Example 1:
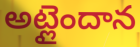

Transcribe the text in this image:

అట్లైందాన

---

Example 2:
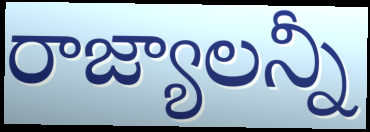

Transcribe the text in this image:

రాజ్యాలన్నీ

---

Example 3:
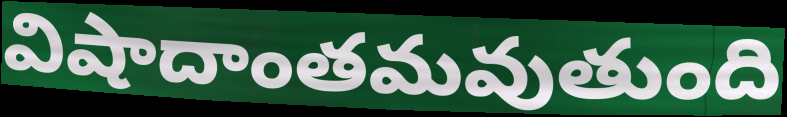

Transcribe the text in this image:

విషాదాంతమవుతుంది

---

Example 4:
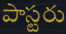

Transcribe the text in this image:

పాస్టరు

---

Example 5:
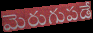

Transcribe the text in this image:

మెరుగుపడే